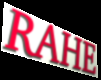
RAHE